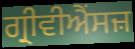
ਗ੍ਰੀਵੀਐਂਸਜ਼